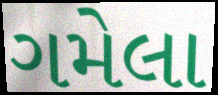
ગમેલા